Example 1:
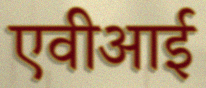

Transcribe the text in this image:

एवीआई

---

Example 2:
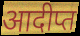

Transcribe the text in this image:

आदीप्त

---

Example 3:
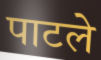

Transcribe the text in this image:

पाटले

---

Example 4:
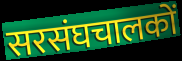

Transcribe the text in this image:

सरसंघचालकों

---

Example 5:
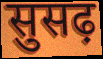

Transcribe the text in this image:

सुसढ़